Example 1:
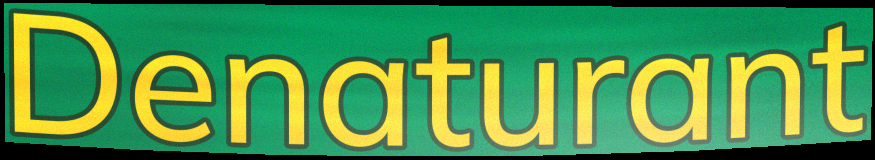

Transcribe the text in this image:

Denaturant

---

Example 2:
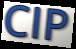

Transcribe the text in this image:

CIP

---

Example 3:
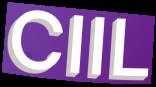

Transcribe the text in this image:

CIIL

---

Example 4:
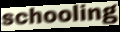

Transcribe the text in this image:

schooling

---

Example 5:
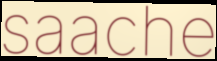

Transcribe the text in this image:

saache